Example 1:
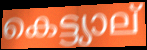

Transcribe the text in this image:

കെട്ട്യാല്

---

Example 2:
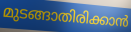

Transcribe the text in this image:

മുടങ്ങാതിരിക്കാൻ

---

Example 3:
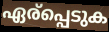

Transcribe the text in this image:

ഏര്പ്പെടുക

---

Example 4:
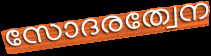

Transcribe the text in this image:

സോദരത്വേന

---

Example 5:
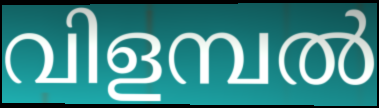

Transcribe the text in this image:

വിളമ്പൽ